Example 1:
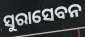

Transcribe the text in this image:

ସୁରାସେବନ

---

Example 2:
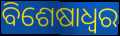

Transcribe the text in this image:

ବିଶେଷାଧ୍ଵର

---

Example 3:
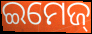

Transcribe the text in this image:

ଇମେଜ୍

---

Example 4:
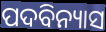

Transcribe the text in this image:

ପଦବିନ୍ୟାସ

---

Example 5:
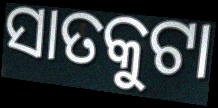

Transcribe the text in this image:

ସାତକୁଟା